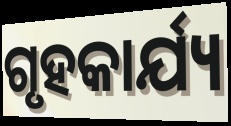
ଗୃହକାର୍ଯ୍ୟ